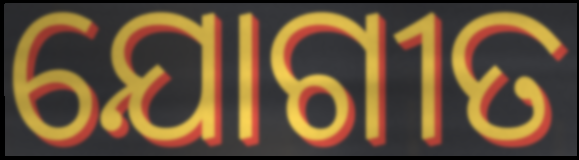
ଯୋଗୀତ